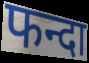
फन्दा